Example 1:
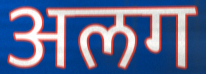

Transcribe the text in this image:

अलग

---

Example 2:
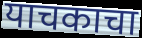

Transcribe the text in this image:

याचकाचा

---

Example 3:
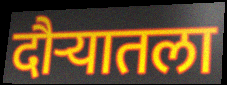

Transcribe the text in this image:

दौऱ्यातला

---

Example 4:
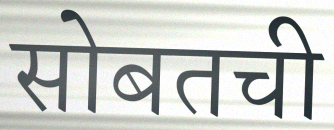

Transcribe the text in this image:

सोबतची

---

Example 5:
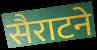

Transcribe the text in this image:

सैराटने